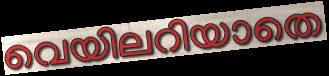
വെയിലറിയാതെ